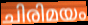
ചിരിമയം